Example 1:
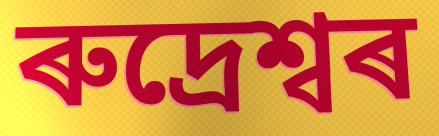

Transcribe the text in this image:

ৰুদ্ৰেশ্বৰ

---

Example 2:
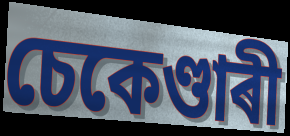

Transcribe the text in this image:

চেকেণ্ডাৰী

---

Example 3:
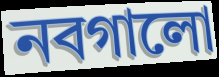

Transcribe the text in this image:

নবগালো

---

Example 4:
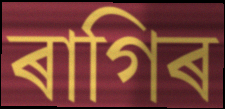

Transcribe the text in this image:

ৰাগিৰ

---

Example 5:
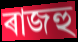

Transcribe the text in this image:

ৰাজহু